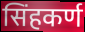
सिंहकर्ण